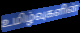
உமிழ்வுகளின்